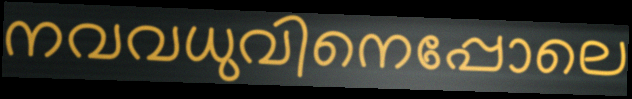
നവവധുവിനെപ്പോലെ